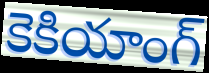
కెకియాంగ్